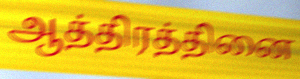
ஆத்திரத்தினை